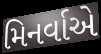
મિનર્વાએ